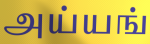
அய்யங்